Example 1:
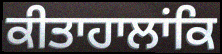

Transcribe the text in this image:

ਕੀਤਾਹਾਲਾਂਕਿ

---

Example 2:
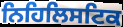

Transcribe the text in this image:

ਨਿਹਿਲਿਸਟਿਕ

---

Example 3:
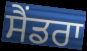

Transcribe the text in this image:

ਸੈਂਡਰਾ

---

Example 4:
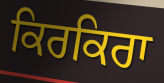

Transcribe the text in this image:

ਕਿਰਕਿਰਾ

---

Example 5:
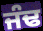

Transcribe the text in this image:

ਜੰਢ